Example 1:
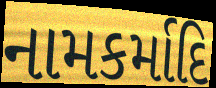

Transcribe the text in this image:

નામકર્માદિ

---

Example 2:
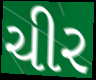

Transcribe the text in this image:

ચીર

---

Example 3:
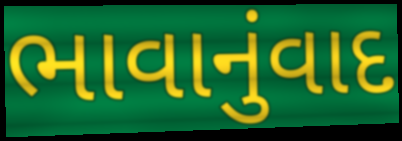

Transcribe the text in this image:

ભાવાનુંવાદ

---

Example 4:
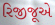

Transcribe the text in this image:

રિજીજૂએ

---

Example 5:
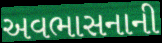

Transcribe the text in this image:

અવભાસનાની